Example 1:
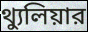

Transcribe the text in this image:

থ্যুলিয়ার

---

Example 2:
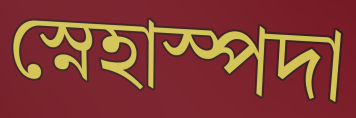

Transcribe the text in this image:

স্নেহাস্পদা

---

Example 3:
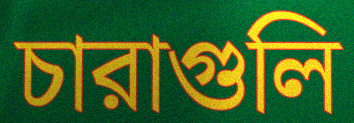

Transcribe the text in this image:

চারাগুলি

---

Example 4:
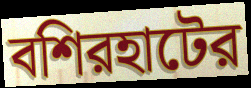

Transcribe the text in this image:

বশিরহাটের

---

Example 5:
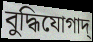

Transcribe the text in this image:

বুদ্ধিযোগাদ্